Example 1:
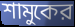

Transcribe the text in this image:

শামুকের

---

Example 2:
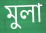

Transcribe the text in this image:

মুলা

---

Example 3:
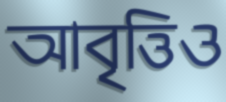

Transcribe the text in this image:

আবৃত্তিও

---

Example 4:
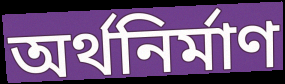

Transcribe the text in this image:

অর্থনির্মাণ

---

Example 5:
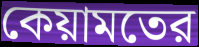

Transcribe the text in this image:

কেয়ামতের